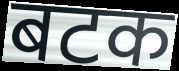
बटक